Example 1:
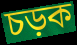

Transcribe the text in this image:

চড়ক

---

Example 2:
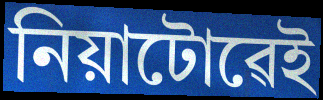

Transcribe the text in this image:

নিয়াটোৱেই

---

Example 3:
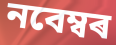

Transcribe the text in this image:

নবেম্বৰ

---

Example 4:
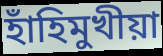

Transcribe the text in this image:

হাঁহিমুখীয়া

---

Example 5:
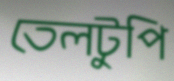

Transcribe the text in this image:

তেলটুপি